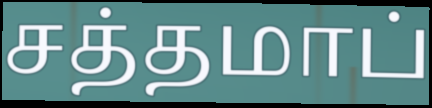
சத்தமாப்